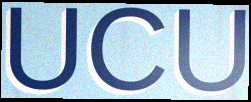
UCU